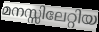
മനസ്സിലേറ്റിയ